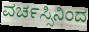
ವರ್ಚಸ್ಸಿನಿಂದ